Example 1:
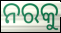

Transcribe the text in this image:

ନରକୁ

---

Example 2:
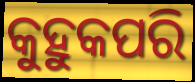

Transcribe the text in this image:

କୁହୁକପରି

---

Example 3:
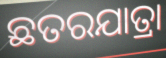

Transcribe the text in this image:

ଛତରଯାତ୍ରା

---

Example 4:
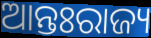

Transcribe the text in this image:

ଆନ୍ତଃରାଜ୍ୟ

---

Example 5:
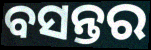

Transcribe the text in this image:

ବସନ୍ତର